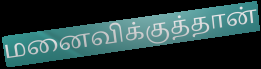
மனைவிக்குத்தான்